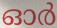
ഓർ